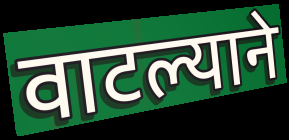
वाटल्याने